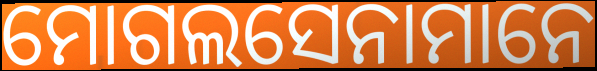
ମୋଗଲସେନାମାନେ